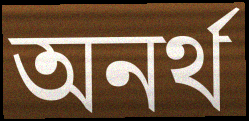
অনর্থ